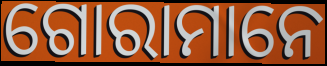
ଗୋରାମାନେ